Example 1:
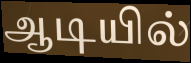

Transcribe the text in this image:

ஆடியில்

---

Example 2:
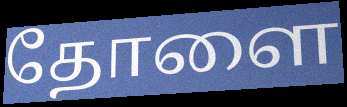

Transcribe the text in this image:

தோளை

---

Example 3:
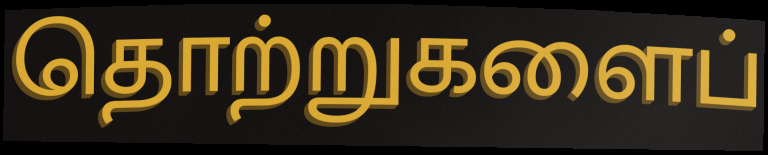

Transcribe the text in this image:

தொற்றுகளைப்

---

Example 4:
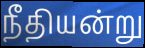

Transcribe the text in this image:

நீதியன்று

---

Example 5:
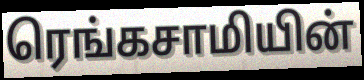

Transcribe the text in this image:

ரெங்கசாமியின்